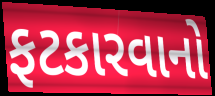
ફટકારવાનો